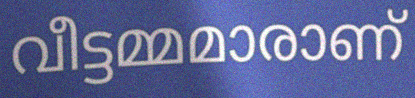
വീട്ടമ്മമാരാണ്